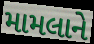
મામલાને